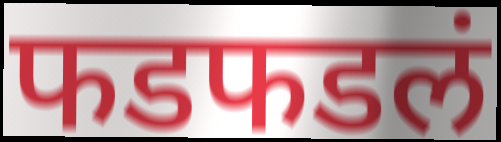
फडफडलं